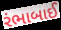
રંભાબાઈ